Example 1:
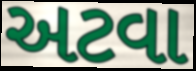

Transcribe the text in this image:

અટવા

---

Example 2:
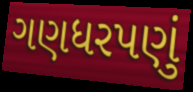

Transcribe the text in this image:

ગણધરપણું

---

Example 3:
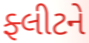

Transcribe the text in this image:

ફ્લીટને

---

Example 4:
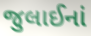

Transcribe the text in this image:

જુલાઈનાં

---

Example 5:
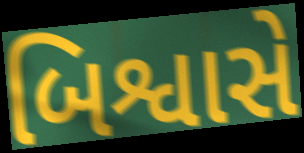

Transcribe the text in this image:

બિશ્વાસે